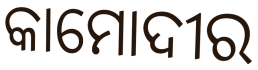
କାମୋଦୀର